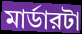
মার্ডারটা